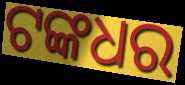
ଟଙ୍କଧର